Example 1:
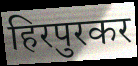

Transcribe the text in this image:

हिरपुरकर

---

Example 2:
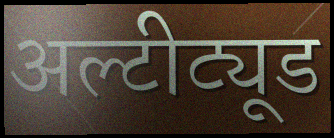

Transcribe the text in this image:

अल्टीट्यूड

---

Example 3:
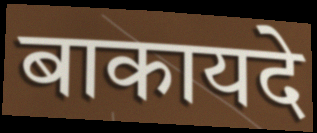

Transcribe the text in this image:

बाकायदे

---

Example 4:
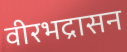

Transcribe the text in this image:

वीरभद्रासन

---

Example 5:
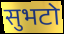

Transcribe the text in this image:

सुभटो